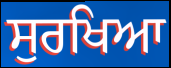
ਸੁਰਖਿਆ